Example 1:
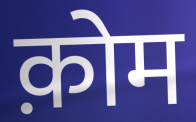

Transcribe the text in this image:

क़ोम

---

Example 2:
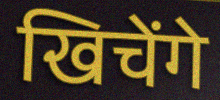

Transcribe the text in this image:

खिचेंगे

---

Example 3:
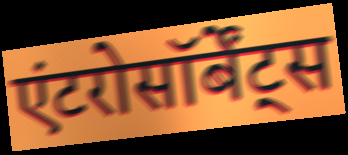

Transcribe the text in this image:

एंटरोसॉर्बेंट्स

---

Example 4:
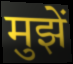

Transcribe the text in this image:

मुझें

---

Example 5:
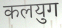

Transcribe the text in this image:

कलयुग